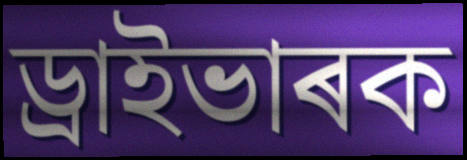
ড্ৰাইভাৰক